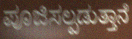
ಪೂಜಿಸಲ್ಪಡುತ್ತಾನೆ